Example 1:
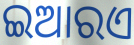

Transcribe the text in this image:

ଇଆରଏ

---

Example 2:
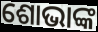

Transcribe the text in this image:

ଶୋଭାଙ୍କ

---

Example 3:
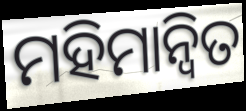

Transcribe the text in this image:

ମହିମାନ୍ଵିତ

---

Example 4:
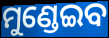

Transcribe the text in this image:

ମୁଣ୍ଡେଇବ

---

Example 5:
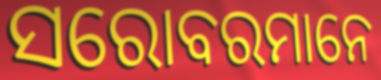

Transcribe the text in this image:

ସରୋବରମାନେ